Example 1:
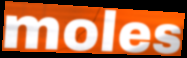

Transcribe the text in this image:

moles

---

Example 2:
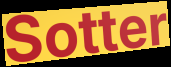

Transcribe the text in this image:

Sotter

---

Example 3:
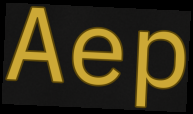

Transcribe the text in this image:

Aep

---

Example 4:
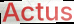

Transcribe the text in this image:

Actus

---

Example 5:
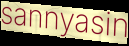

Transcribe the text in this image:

sannyasin